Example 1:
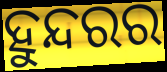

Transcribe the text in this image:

ହୁନ୍ଦରର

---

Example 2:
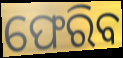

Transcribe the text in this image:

ଫେରିବ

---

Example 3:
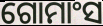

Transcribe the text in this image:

ଗୋମାଂସ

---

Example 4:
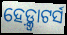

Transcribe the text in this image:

ହେଡ଼୍କ୍ୱାଟର୍ସ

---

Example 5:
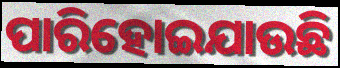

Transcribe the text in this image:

ପାରିହୋଇଯାଉଛି